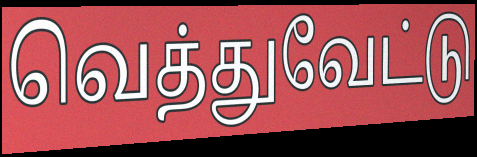
வெத்துவேட்டு